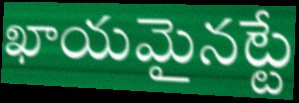
ఖాయమైనట్టే